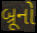
બ્રૂનો